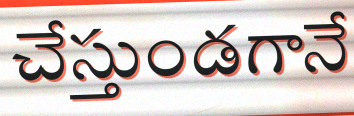
చేస్తుండగానే